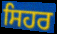
ਸਿਹਰ